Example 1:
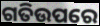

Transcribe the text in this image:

ଗତିଉପରେ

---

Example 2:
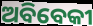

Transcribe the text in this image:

ଅବିବେକୀ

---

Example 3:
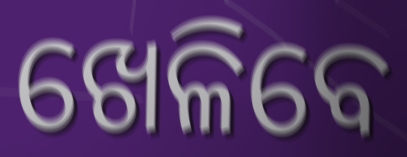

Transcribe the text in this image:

ଖେଳିବେ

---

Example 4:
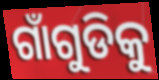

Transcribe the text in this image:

ଗାଁଗୁଡିକୁ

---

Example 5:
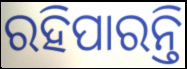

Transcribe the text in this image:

ରହିପାରନ୍ତି